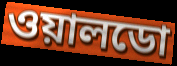
ওয়ালডো